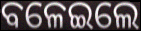
ବଳେଇଲେ